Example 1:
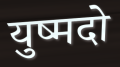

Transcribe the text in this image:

युष्मदो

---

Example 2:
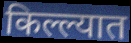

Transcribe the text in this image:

किल्ल्यात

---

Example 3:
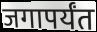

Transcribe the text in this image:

जगापर्यंत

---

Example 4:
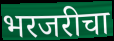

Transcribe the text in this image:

भरजरीचा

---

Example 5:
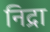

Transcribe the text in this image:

निद्रा